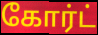
கோர்ட்